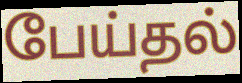
பேய்தல்